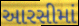
આરસીમાં